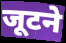
जूटने